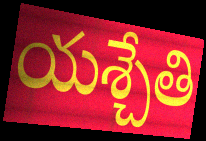
యశ్చేతి